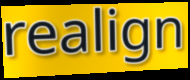
realign